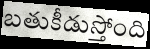
బతుకీడుస్తోంది